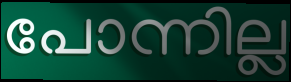
പോന്നില്ല